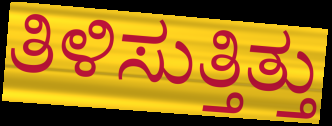
ತಿಳಿಸುತ್ತಿತ್ತು